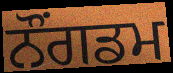
ਨੌਂਗਡਮ